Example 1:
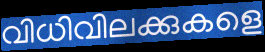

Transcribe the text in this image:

വിധിവിലക്കുകളെ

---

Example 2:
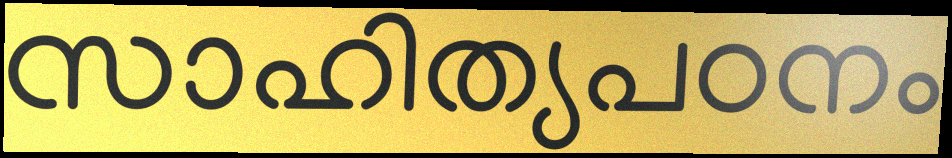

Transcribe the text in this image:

സാഹിത്യപഠനം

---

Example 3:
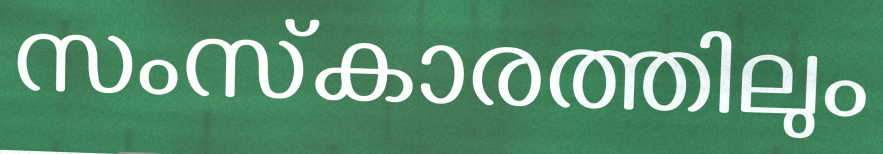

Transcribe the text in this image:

സംസ്‌കാരത്തിലും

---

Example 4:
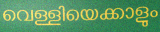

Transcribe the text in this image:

വെള്ളിയെക്കാളും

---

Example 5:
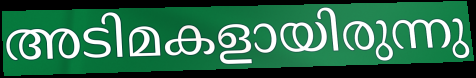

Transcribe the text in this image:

അടിമകളായിരുന്നു